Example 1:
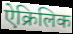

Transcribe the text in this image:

ऐक्रिलिक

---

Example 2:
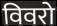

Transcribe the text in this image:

विवरो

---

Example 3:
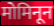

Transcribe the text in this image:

मोमिनून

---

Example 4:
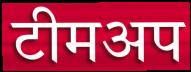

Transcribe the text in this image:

टीमअप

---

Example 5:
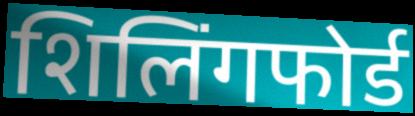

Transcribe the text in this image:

शिलिंगफोर्ड